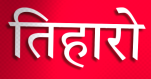
तिहारो